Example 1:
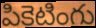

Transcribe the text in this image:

పికెటింగు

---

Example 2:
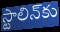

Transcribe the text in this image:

స్టాలిన్‌కు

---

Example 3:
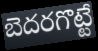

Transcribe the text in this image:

బెదరగొట్టే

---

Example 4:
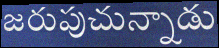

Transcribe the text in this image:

జరుపుచున్నాడు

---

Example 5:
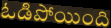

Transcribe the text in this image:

ఓడిపోయింది